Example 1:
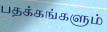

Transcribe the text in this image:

பதக்கங்களும்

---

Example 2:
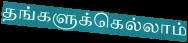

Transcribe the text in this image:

தங்களுக்கெல்லாம்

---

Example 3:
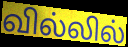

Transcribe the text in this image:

வில்லில்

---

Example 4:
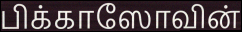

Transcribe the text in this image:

பிக்காஸோவின்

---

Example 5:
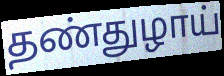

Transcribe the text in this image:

தண்துழாய்